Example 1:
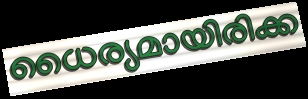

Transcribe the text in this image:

ധൈര്യമായിരിക്ക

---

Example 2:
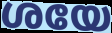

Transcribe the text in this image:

ശയേ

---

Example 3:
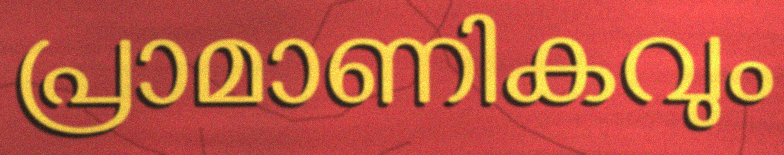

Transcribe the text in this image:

പ്രാമാണികവും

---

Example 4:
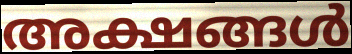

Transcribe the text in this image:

അക്ഷങ്ങൾ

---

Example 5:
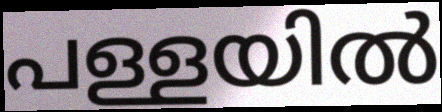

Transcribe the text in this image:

പള്ളയിൽ